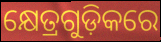
କ୍ଷେତ୍ରଗୁଡ଼ିକରେ